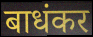
बाधंकर